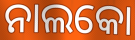
ନାଲକୋ